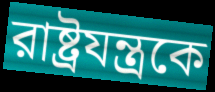
রাষ্ট্রযন্ত্রকে